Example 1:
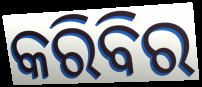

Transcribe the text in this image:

କରିବିର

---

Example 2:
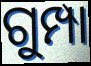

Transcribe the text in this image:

ଗୁମ୍ପା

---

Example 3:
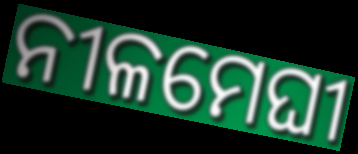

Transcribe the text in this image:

ନୀଳମେଘୀ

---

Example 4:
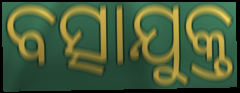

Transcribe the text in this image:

ବତ୍ସାଯୁକ୍ତ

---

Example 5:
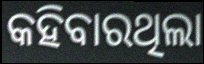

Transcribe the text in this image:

କହିବାରଥିଲା